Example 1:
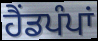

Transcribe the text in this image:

ਹੈਂਡਪੰਪਾਂ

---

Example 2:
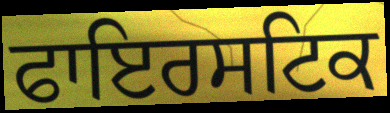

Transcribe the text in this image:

ਫਾਇਰਸਟਿਕ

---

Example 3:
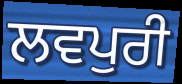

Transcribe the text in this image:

ਲਵਪੁਰੀ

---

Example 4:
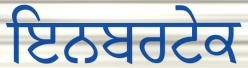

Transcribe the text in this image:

ਇਨਬਰਟੇਕ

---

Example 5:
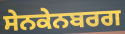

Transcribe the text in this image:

ਸੇਨਕੇਨਬਰਗ